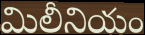
మిలీనియం